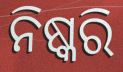
ନିଷ୍କରି